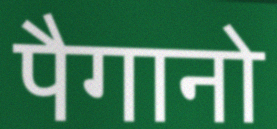
पैगानो